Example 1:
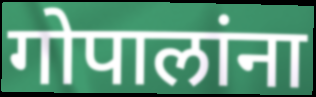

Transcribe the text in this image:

गोपालांना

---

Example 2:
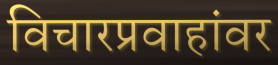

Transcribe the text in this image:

विचारप्रवाहांवर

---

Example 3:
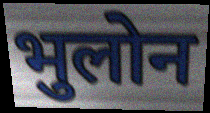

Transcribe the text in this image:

भुलोन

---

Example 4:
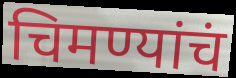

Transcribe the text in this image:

चिमण्यांचं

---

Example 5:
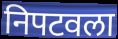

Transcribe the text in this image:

निपटवला